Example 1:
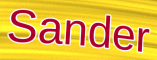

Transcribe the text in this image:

Sander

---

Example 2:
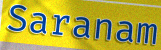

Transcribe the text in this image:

Saranam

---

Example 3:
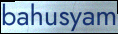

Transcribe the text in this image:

bahusyam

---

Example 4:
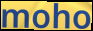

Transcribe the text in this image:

moho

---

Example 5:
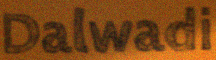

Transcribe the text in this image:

Dalwadi